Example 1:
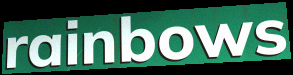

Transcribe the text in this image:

rainbows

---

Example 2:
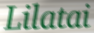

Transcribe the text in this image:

Lilatai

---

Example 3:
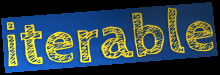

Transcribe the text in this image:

iterable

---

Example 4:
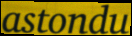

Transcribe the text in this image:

astondu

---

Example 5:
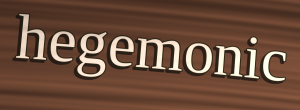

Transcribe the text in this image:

hegemonic